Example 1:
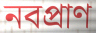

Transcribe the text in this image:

নবপ্রাণ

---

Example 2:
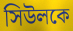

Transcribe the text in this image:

সিউলকে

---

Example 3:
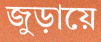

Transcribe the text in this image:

জুড়ায়ে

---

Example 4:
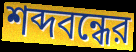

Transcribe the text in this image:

শব্দবন্ধের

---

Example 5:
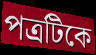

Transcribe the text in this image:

পত্রটিকে